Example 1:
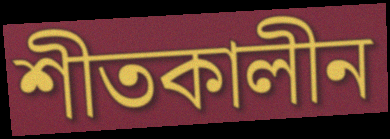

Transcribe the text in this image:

শীতকালীন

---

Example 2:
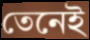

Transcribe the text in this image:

তেনেই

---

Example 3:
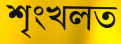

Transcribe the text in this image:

শৃংখলত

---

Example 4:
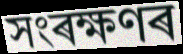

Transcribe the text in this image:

সংৰক্ষণৰ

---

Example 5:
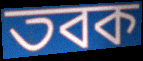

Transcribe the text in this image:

তবক